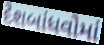
દેશબાંધવોમાં